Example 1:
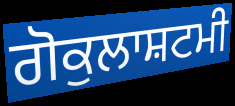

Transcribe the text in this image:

ਗੋਕੁਲਾਸ਼ਟਮੀ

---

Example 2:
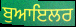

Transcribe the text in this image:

ਬੁਆਇਲਰ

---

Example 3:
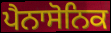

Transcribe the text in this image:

ਪੈਨਾਸੋਨਿਕ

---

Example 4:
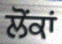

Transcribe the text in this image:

ਲੋਂਕਾਂ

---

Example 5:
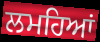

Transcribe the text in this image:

ਲਮਹਿਆਂ